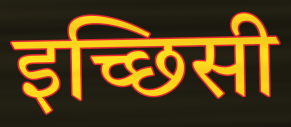
इच्छिसी